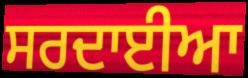
ਸਰਦਾਈਆ